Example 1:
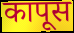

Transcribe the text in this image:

कापूस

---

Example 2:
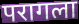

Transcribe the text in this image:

परागला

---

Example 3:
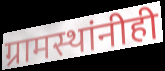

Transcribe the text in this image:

ग्रामस्थांनीही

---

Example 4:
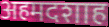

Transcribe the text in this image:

अहमदशाह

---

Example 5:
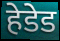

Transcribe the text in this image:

हेडेड